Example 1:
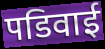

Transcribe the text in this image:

पडिवाई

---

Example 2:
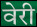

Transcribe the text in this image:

वेरी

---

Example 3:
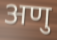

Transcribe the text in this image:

अणु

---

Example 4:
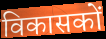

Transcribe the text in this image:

विकासकों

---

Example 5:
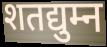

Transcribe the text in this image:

शतद्युम्न